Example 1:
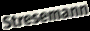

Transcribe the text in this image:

Stresemann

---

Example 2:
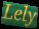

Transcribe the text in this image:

Lely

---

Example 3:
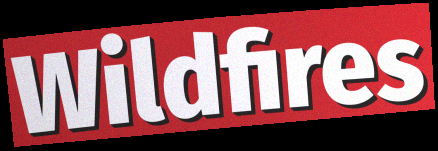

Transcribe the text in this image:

Wildfires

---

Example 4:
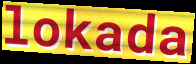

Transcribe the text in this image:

lokada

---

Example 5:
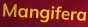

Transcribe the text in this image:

Mangifera